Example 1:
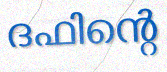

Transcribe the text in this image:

ദഫിന്റെ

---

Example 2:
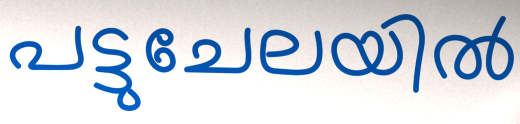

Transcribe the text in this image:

പട്ടുചേലയിൽ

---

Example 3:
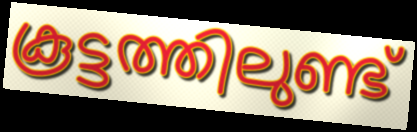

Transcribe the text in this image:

കൂട്ടത്തിലുണ്ട്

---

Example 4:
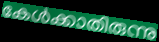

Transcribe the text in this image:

കേൾക്കാതിരുന്നു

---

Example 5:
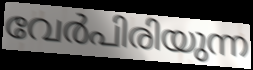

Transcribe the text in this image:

വേർപിരിയുന്ന